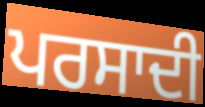
ਪਰਸਾਦੀ